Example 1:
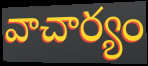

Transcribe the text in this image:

వాచార్యం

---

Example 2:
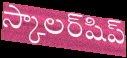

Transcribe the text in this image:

స్కాలర్‌షిప్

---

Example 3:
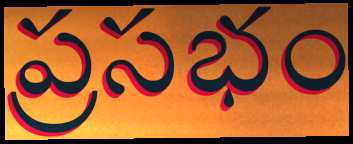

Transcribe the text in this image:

ప్రసభం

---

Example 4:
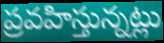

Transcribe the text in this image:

ప్రవహిస్తున్నట్లు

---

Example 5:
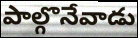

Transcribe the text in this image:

పాల్గొనేవాడు